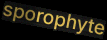
sporophyte